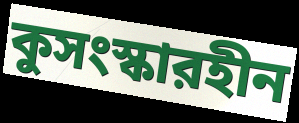
কুসংস্কারহীন